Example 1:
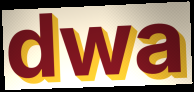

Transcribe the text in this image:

dwa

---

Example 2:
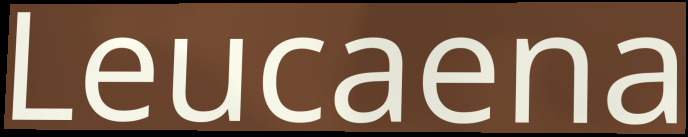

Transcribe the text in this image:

Leucaena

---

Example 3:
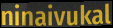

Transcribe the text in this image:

ninaivukal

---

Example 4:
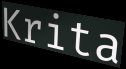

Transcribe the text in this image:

Krita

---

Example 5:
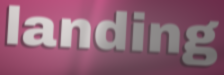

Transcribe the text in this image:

landing